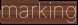
marking